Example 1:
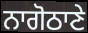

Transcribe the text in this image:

ਨਾਗੋਠਾਣੇ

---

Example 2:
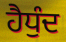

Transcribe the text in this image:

ਹੈਧੁੰਦ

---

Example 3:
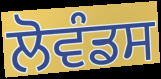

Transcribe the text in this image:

ਲੋਵੰਡਸ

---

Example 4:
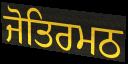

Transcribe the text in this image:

ਜੋਤਿਰਮਠ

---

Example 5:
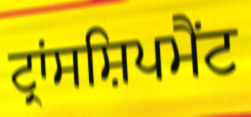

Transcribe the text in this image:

ਟ੍ਰਾਂਸਸ਼ਿਪਮੈਂਟ